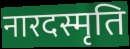
नारदस्मृति